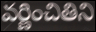
వర్ణించితిని